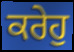
ਕਰੇਹੁ